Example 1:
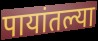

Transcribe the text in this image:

पायांतल्या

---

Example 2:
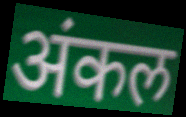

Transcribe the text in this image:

अंकल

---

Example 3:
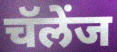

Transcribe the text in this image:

चॅलेंज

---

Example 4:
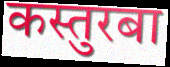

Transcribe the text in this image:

कस्तुरबा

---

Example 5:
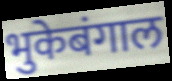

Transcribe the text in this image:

भुकेबंगाल